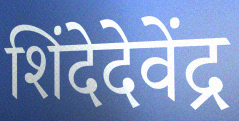
शिंदेदेवेंद्र